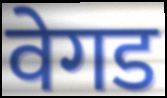
वेगड